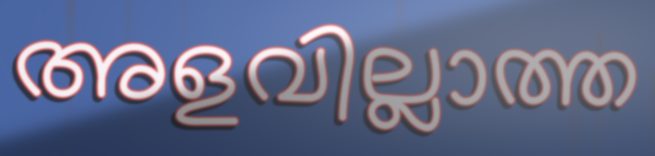
അളവില്ലാത്ത